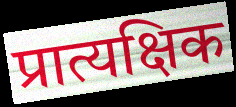
प्रात्यक्षिक